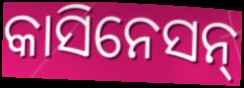
କାସିନେସନ୍